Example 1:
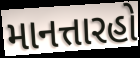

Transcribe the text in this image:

માનત્તારહો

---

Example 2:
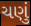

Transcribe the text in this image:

ચણું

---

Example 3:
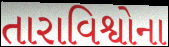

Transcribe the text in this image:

તારાવિશ્વોના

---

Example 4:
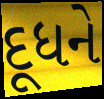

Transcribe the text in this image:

દૂધને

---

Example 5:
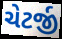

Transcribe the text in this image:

ચેટર્જી